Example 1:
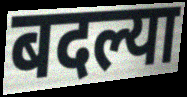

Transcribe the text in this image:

बदल्या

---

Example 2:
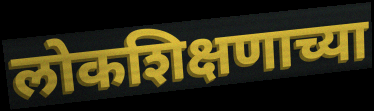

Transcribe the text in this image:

लोकशिक्षणाच्या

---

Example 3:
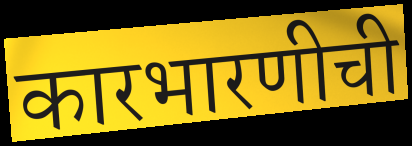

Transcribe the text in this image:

कारभारणीची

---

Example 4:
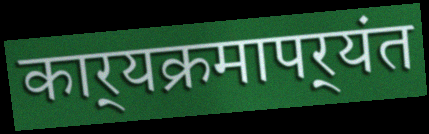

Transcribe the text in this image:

कार्यक्रमापर्यंत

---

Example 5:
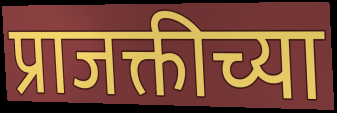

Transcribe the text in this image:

प्राजक्तीच्या